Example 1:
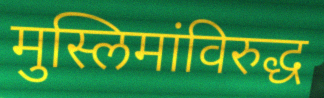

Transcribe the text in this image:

मुस्लिमांविरुद्ध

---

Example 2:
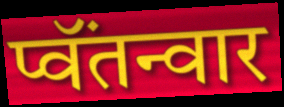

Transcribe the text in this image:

प्वॅंतन्वार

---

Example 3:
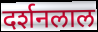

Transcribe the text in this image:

दर्शनलाल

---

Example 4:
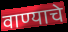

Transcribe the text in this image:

वाण्याचे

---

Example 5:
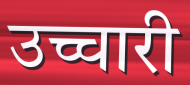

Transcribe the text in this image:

उच्चारी